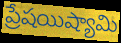
ప్రేషయిష్యామి